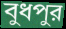
বুধপুর